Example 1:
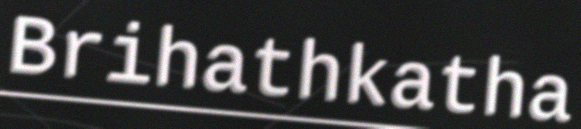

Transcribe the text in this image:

Brihathkatha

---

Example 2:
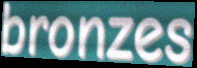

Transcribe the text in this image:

bronzes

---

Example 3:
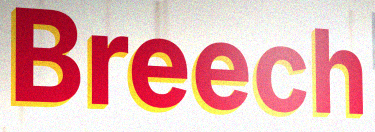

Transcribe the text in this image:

Breech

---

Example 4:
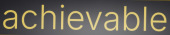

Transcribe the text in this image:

achievable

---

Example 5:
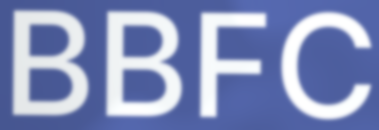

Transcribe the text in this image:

BBFC